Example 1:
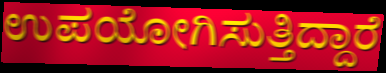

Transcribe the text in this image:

ಉಪಯೋಗಿಸುತ್ತಿದ್ದಾರೆ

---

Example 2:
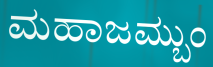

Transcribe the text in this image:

ಮಹಾಜಮ್ಬುಂ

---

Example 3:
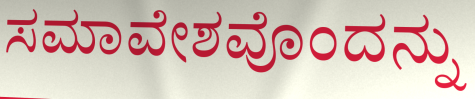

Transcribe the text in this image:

ಸಮಾವೇಶವೊಂದನ್ನು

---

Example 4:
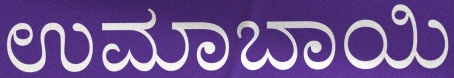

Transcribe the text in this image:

ಉಮಾಬಾಯಿ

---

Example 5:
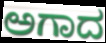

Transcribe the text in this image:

ಅಗಾದ